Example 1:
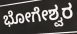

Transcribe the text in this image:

ಭೋಗೇಶ್ವರ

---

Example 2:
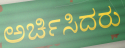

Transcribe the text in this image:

ಅರ್ಚಿಸಿದರು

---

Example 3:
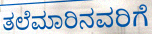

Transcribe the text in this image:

ತಲೆಮಾರಿನವರಿಗೆ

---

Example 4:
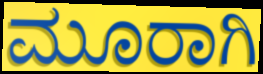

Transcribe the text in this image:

ಮೂರಾಗಿ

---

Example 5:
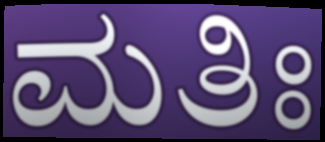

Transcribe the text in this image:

ಮತಿಃ